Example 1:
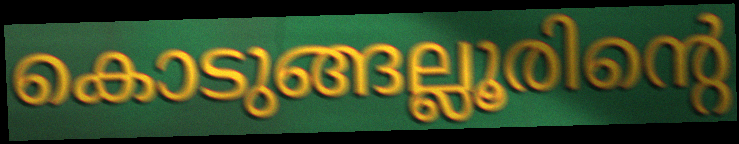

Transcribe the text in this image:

കൊടുങ്ങല്ലൂരിന്റെ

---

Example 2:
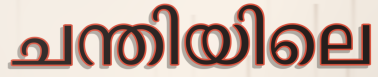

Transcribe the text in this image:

ചന്തിയിലെ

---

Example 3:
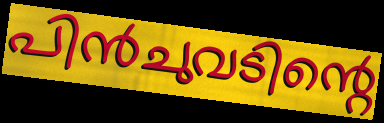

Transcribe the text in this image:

പിൻചുവടിന്റെ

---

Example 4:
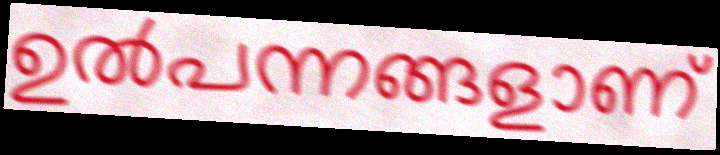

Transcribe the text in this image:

ഉൽപന്നങ്ങളാണ്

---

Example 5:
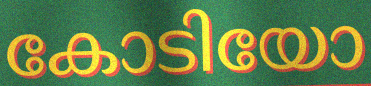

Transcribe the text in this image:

കോടിയോ